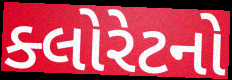
ક્લોરેટનો